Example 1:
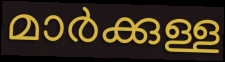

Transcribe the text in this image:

മാർക്കുള്ള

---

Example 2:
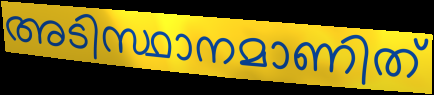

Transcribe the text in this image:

അടിസ്ഥാനമാണിത്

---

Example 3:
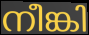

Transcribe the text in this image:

നീങ്കി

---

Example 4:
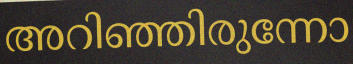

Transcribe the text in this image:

അറിഞ്ഞിരുന്നോ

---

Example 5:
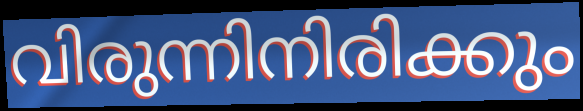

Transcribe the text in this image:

വിരുന്നിനിരിക്കും